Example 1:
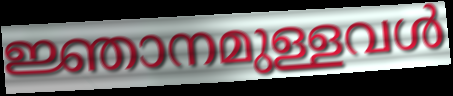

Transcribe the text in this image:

ജ്ഞാനമുള്ളവൾ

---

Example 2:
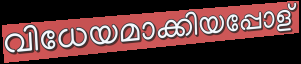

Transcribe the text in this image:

വിധേയമാക്കിയപ്പോള്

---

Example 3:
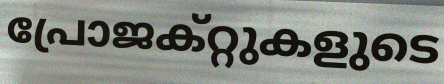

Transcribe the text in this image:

പ്രോജക്റ്റുകളുടെ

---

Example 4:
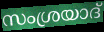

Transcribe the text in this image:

സംശ്രയാദ്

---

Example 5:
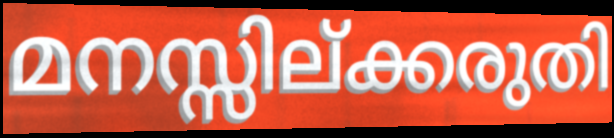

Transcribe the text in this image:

മനസ്സില്ക്കരുതി